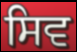
ਸਿਵ